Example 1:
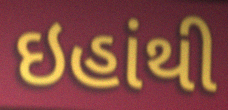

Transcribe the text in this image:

ઇહાંથી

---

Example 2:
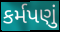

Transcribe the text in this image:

કર્મપણું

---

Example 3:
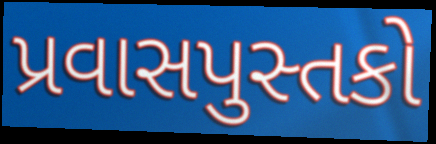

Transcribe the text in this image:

પ્રવાસપુસ્તકો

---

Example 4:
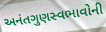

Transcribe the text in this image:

અનંતગુણસ્વભાવોની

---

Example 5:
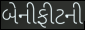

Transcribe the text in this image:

બેનીફીટની